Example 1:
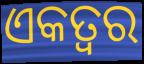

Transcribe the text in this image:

ଏକତ୍ବର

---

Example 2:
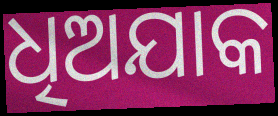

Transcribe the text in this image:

ଧିଅଯାକ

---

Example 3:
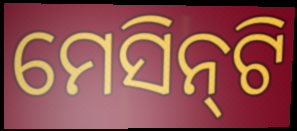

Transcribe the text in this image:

ମେସିନ୍‌ଟି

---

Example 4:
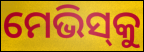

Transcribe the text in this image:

ମେଭିସ୍‌କୁ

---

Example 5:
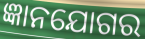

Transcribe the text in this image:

ଜ୍ଞାନଯୋଗର